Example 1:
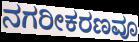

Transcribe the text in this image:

ನಗರೀಕರಣವೂ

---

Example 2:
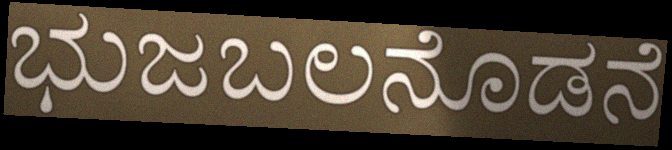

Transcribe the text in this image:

ಭುಜಬಲನೊಡನೆ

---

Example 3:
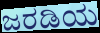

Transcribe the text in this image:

ಜರಡಿಯ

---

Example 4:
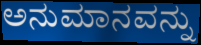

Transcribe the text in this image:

ಅನುಮಾನವನ್ನು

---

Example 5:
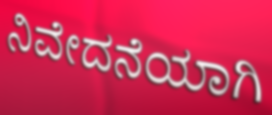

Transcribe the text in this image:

ನಿವೇದನೆಯಾಗಿ